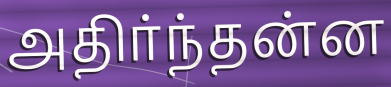
அதிர்ந்தன்ன